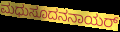
ಮಧುಸೂದನನಾಯರ್